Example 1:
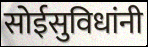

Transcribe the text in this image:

सोईसुविधांनी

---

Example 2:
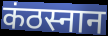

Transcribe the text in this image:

कंठस्नान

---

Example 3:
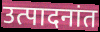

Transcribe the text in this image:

उत्पादनांत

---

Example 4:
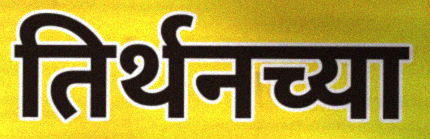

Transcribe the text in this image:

तिर्थनच्या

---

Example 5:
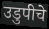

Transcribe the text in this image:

उडुपीचे